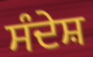
ਸੰਦੇਸ਼